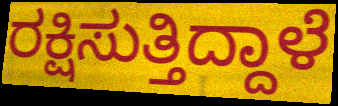
ರಕ್ಷಿಸುತ್ತಿದ್ದಾಳೆ